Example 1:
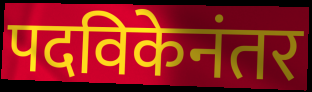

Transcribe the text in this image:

पदविकेनंतर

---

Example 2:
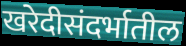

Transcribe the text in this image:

खरेदीसंदर्भातील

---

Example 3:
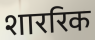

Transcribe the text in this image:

शाररिक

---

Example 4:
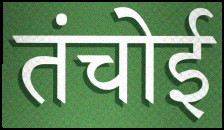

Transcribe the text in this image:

तंचोई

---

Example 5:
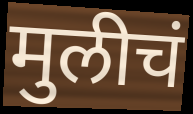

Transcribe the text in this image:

मुलीचं